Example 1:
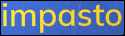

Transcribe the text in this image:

impasto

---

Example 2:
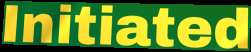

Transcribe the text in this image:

Initiated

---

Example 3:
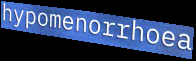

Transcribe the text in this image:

hypomenorrhoea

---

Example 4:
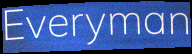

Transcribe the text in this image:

Everyman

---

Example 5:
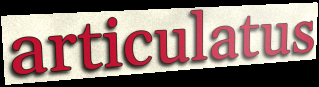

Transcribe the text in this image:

articulatus